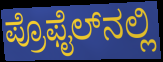
ಪ್ರೊಫೈಲ್‌ನಲ್ಲಿ